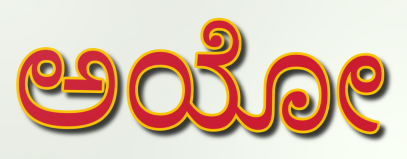
ಅಯೋ